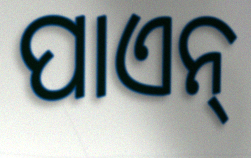
ପାଏନ୍